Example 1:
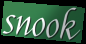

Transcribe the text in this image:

snook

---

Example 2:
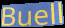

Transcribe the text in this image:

Buell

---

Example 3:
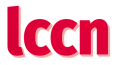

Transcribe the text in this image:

lccn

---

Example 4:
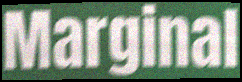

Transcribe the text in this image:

Marginal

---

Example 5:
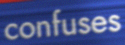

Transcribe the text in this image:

confuses